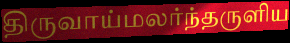
திருவாய்மலர்ந்தருளிய